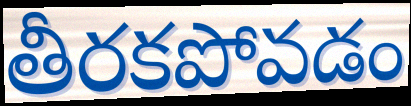
తీరకపోవడం